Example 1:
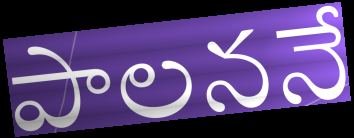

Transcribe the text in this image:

పాలననే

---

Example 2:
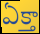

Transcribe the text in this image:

ఏక్తా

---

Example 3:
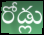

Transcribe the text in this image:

రోడ్లు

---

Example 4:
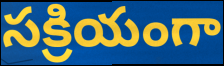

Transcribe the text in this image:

సక్రియంగా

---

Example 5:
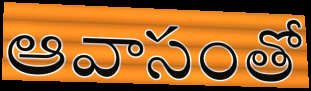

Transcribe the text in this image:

ఆవాసంతో